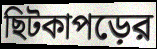
ছিটকাপড়ের